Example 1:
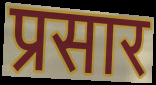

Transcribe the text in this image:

प्रसार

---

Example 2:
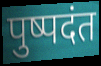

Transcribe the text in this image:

पुष्पदंत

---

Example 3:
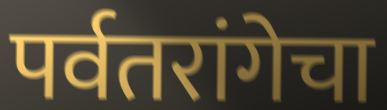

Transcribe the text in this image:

पर्वतरांगेचा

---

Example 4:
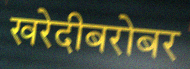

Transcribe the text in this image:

खरेदीबरोबर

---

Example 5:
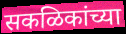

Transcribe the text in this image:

सकळिकांच्या